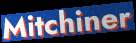
Mitchiner